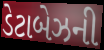
ડેટાબેઝની